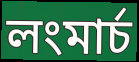
লংমার্চ